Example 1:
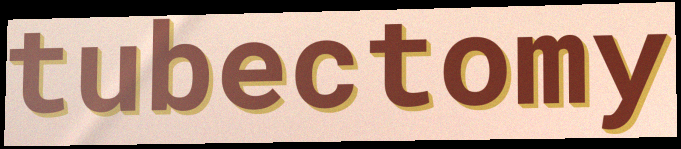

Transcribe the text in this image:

tubectomy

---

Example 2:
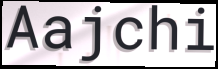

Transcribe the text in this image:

Aajchi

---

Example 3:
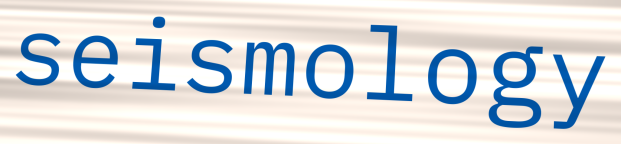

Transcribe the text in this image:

seismology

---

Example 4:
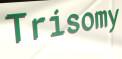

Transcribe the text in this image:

Trisomy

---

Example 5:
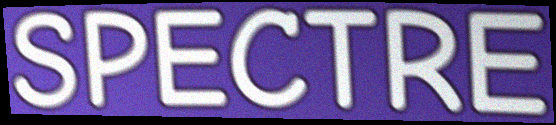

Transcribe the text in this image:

SPECTRE